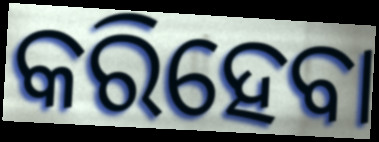
କରିହେବା